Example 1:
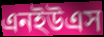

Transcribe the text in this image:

এনইউএস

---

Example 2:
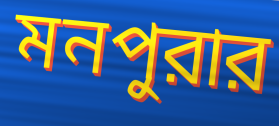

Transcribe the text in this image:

মনপুরার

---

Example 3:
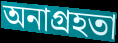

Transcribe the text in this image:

অনাগ্রহতা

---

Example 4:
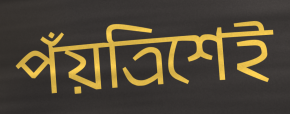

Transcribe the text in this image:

পঁয়ত্রিশেই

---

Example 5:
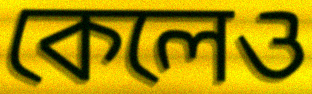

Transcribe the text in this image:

কেলেও